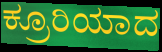
ಕ್ರೂರಿಯಾದ